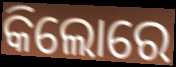
କିଲୋରେ